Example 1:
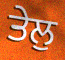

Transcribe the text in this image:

ਤੇਲੁ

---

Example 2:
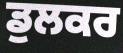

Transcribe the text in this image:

ਡੁਲਕਰ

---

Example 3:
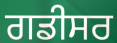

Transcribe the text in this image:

ਗਡੀਸਰ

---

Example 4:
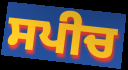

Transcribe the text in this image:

ਸਪੀਚ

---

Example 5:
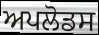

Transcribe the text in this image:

ਅਪਲੋਡਸ